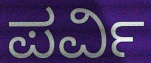
ಪರ್ವಿ